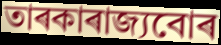
তাৰকাৰাজ্যবোৰ